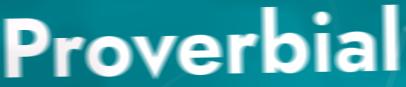
Proverbial